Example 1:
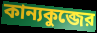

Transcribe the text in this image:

কান্যকুব্জের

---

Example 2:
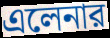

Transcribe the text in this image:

এলেনার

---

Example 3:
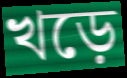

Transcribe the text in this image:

খড়ে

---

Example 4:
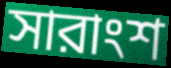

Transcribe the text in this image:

সারাংশ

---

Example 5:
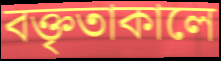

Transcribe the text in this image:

বক্তৃতাকালে